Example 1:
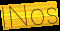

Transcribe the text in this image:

INos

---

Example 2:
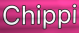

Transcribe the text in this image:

Chippi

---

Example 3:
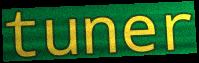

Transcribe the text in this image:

tuner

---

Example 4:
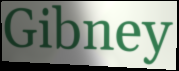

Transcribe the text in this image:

Gibney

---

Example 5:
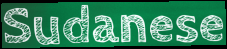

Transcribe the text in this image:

Sudanese